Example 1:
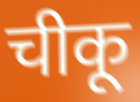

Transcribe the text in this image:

चीकू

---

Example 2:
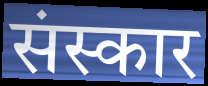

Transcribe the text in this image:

संस्‍कार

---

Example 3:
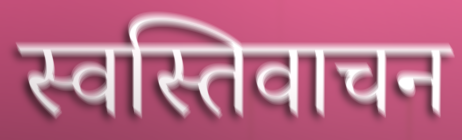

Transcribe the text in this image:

स्वस्तिवाचन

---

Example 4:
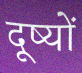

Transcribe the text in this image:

दूष्यों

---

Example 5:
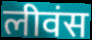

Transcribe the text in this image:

लीवंस